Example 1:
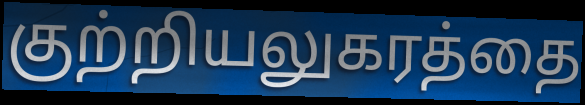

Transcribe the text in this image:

குற்றியலுகரத்தை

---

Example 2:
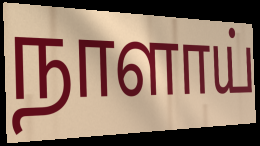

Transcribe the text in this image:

நாளாய்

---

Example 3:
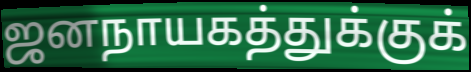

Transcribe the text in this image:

ஜனநாயகத்துக்குக்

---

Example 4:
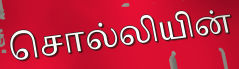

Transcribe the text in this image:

சொல்லியின்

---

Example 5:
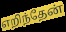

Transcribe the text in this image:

எறிந்தேன்